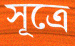
সূত্ৰে